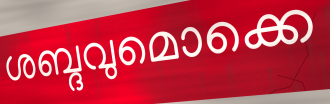
ശബ്ദവുമൊക്കെ